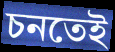
চনতেই